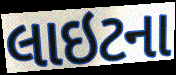
લાઇટના